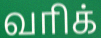
வரிக்